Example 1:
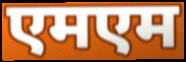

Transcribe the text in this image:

एमएम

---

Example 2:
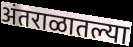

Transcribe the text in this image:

अंतराळातल्या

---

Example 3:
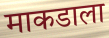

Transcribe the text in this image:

माकडाला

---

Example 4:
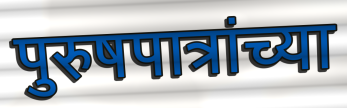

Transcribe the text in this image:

पुरुषपात्रांच्या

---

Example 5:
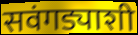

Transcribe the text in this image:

सवंगड्याशी